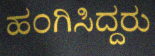
ಹಂಗಿಸಿದ್ದರು